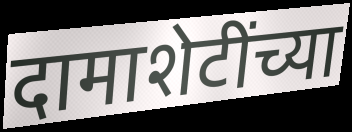
दामाशेटींच्या